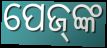
ପେଜ୍‌ଙ୍କ